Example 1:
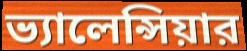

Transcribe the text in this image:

ভ্যালেন্সিয়ার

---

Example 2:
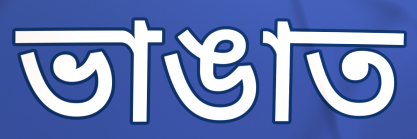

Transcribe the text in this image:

ভাঙাত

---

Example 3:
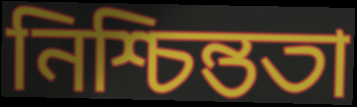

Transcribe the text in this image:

নিশ্চিন্ততা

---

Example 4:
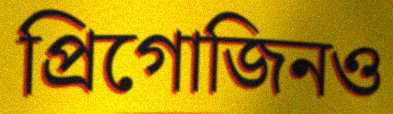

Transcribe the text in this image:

প্রিগোজিনও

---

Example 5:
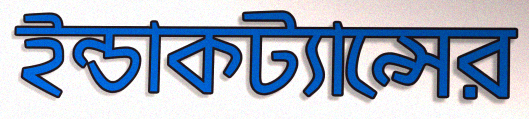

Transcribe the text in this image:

ইন্ডাকট্যান্সের